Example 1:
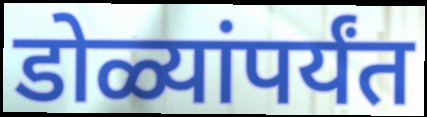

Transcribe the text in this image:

डोळ्यांपर्यंत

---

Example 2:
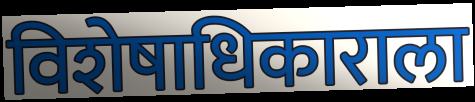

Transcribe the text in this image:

विशेषाधिकाराला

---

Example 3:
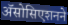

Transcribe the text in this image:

ॲसोसिएशनने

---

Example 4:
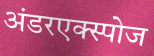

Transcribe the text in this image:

अंडरएक्स्पोज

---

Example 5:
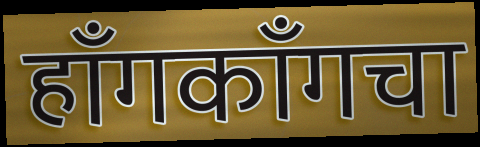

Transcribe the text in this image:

हॉंगकॉंगचा